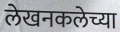
लेखनकलेच्या